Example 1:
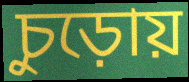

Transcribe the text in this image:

চুড়োয়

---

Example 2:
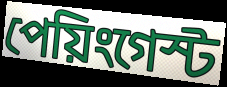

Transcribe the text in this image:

পেয়িংগেস্ট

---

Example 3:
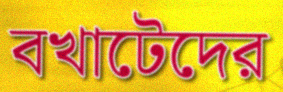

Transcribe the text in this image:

বখাটেদের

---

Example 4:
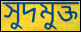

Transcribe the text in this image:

সুদমুক্ত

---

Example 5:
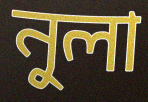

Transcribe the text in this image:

নুলা